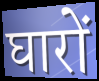
घारों